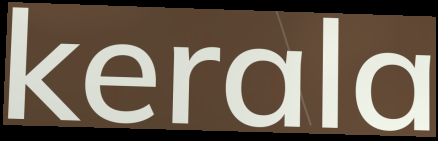
kerala